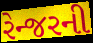
રેન્જરની